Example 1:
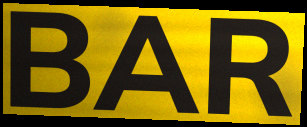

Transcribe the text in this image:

BAR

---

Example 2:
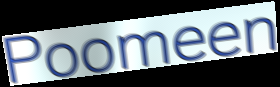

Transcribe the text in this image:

Poomeen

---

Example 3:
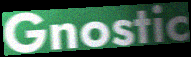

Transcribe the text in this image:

Gnostic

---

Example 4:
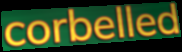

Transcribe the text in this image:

corbelled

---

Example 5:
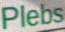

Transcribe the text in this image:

Plebs